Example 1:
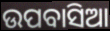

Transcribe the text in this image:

ଉପବାସିଆ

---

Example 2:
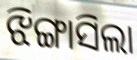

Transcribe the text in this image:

ଝିଙ୍ଗାସିଲା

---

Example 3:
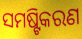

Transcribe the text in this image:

ସମଷ୍ଟିକରଣ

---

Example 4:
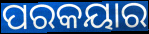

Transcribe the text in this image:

ପରକୟାର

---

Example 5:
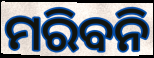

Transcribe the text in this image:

ମରିବନି